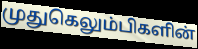
முதுகெலும்பிகளின்